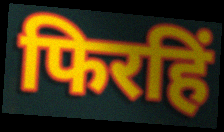
फिरहिं